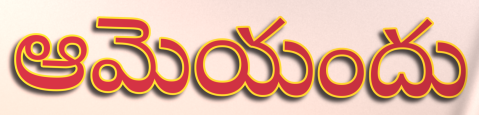
ఆమెయందు